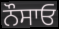
ਨੌਸਾਓ